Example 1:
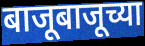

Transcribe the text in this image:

बाजूबाजूच्या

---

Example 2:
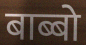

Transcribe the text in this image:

बाब्बो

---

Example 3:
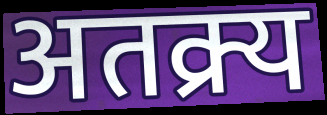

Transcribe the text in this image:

अतक्र्य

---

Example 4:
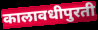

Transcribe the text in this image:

कालावधीपुरती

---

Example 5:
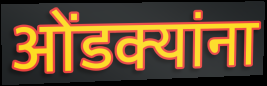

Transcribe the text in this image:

ओंडक्यांना